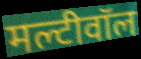
मल्टीवॉल